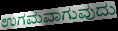
ಉಗಮವಾಗುವುದು